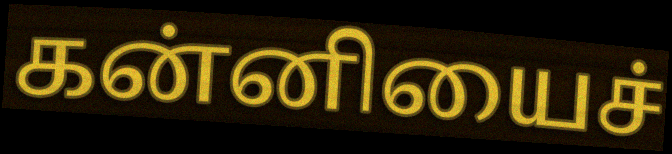
கன்னியைச்